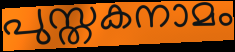
പുസ്തകനാമം